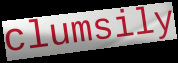
clumsily